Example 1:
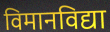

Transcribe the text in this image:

विमानविद्या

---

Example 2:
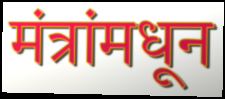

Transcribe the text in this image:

मंत्रांमधून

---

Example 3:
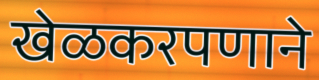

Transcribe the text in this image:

खेळकरपणाने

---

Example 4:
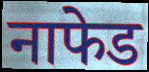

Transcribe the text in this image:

नाफेड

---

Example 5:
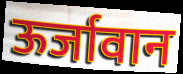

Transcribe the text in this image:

ऊर्जावान